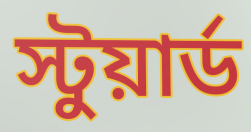
স্টুয়ার্ড